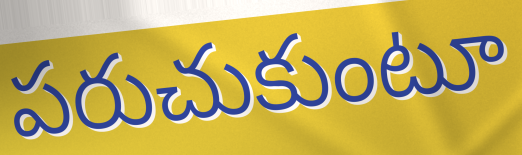
పరుచుకుంటూ